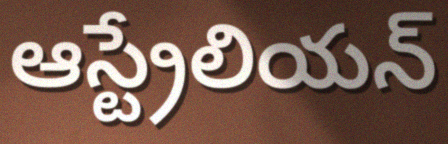
ఆస్ట్రేలియన్